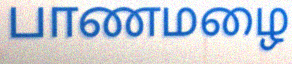
பாணமழை